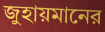
জুহায়মানের